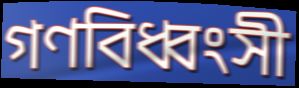
গণবিধ্বংসী